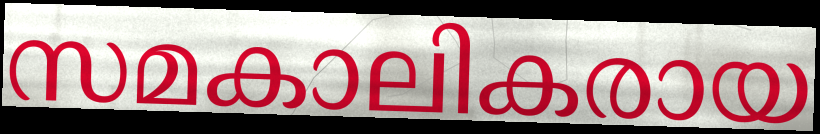
സമകാലികരായ